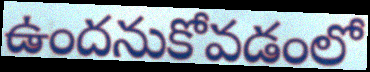
ఉందనుకోవడంలో